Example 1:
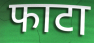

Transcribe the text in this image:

फाटा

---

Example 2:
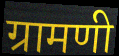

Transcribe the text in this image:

ग्रामणी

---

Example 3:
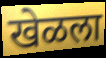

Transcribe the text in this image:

खेळला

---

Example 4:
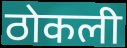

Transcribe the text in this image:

ठोकली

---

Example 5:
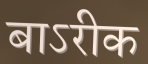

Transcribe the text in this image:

बाऽरीक